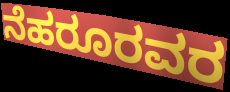
ನೆಹರೂರವರ